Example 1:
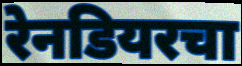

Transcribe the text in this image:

रेनडियरचा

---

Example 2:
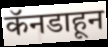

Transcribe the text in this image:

कॅनडाहून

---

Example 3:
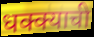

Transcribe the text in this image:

धक्क्याची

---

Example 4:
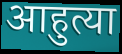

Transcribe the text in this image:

आहुत्या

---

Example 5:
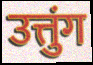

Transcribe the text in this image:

उत्तुंग